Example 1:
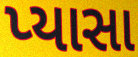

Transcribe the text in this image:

પ્યાસા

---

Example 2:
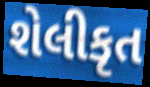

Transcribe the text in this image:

શેલીકૃત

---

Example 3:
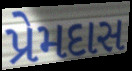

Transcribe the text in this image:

પ્રેમદાસ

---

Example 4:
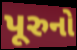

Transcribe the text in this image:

પૂરુનો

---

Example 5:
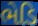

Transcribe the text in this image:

ભેડિ